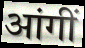
आंगीं